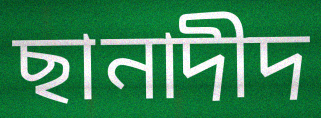
ছানাদীদ